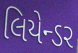
લિયેન્ડર